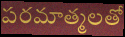
పరమాత్మలతో